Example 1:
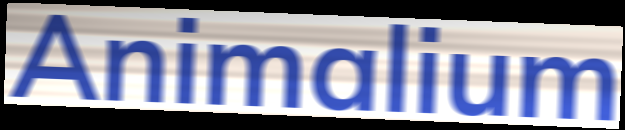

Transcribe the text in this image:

Animalium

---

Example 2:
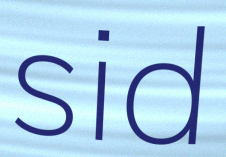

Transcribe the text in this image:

sid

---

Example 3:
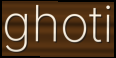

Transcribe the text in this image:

ghoti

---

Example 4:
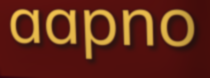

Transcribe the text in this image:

aapno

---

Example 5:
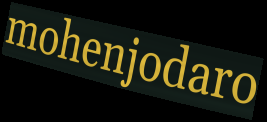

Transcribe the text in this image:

mohenjodaro